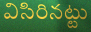
విసిరినట్టు